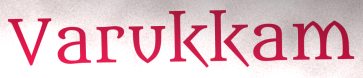
Varukkam